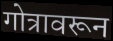
गोत्रावरून